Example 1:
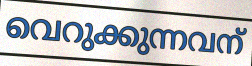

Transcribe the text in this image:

വെറുക്കുന്നവന്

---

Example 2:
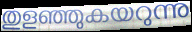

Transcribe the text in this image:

തുളഞ്ഞുകയറുന്നു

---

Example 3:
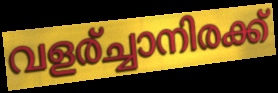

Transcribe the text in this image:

വളര്ച്ചാനിരക്ക്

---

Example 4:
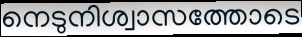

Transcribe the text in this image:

നെടുനിശ്വാസത്തോടെ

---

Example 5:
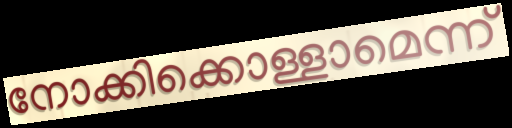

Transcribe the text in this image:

നോക്കിക്കൊള്ളാമെന്ന്